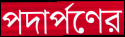
পদার্পণের